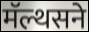
मॅल्थसने